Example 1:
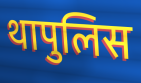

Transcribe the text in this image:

थापुलिस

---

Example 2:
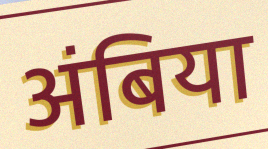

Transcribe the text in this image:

अंबिया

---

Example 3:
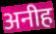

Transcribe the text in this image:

अनीह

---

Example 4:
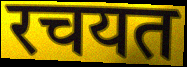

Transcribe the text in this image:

रचयत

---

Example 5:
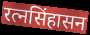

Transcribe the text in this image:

रत्नसिंहासन